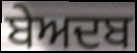
ਬੇਅਦਬ